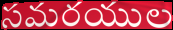
సమరయుల